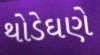
થોડેઘણે